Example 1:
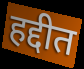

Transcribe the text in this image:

हद्दीत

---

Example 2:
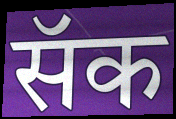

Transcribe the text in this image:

सॅक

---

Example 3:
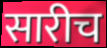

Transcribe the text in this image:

सारीच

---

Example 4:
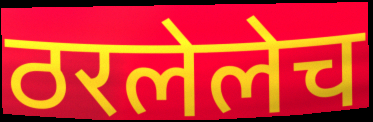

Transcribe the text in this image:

ठरलेलेच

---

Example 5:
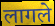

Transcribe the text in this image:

लागले